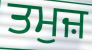
ਤਮੁਜ਼